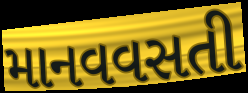
માનવવસતી